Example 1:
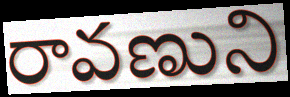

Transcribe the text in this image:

రావణుని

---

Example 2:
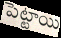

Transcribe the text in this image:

పెట్టాయి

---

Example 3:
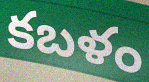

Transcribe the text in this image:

కబళం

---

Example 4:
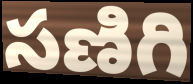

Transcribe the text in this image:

సణిగి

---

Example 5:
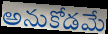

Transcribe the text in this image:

అనుకోడమే